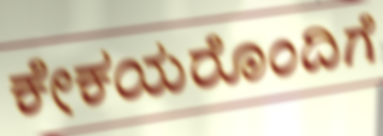
ಕೇಕಯರೊಂದಿಗೆ